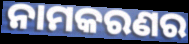
ନାମକରଣର